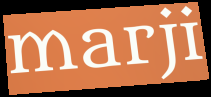
marji